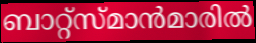
ബാറ്റ്സ്മാൻമാരിൽ